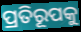
ପ୍ରତିରୂପକୁ